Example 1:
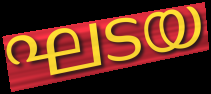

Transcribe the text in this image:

ഘടയ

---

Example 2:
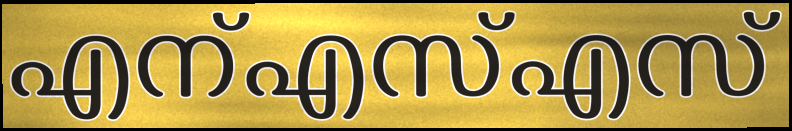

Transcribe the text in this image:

എന്എസ്എസ്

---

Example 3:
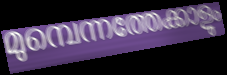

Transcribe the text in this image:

മുമ്പെന്നത്തേക്കാളും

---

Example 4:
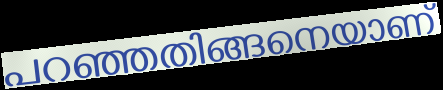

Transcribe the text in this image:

പറഞ്ഞതിങ്ങനെയാണ്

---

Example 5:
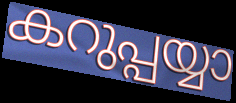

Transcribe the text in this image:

കറുപ്പയ്യാ